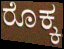
ರೊಕ್ಕ